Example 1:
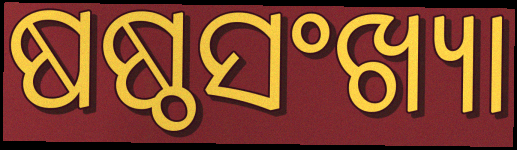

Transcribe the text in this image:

ଷଷ୍ଠସଂଖ୍ୟା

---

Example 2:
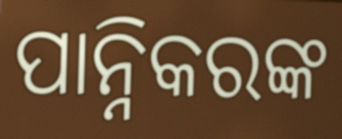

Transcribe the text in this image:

ପାନ୍ନିକରଙ୍କ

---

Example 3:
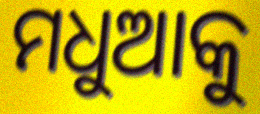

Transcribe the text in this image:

ମଧୁଆକୁ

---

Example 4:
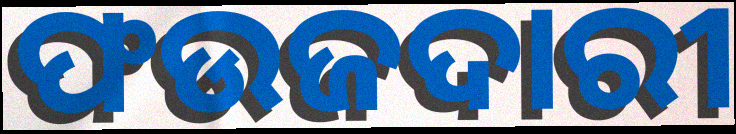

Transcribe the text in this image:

ଫଉଜଦାରୀ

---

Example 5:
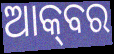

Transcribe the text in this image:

ଆକ୍‌ବର